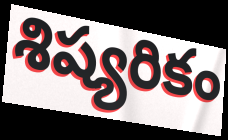
శిష్యరికం